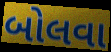
બોલવા